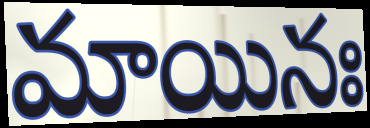
మాయినః